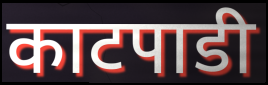
काटपाडी